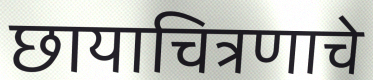
छायाचित्रणाचे